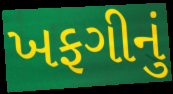
ખફગીનું